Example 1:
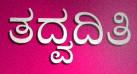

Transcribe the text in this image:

ತದ್ವದಿತಿ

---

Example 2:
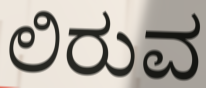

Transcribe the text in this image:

ಲಿರುವ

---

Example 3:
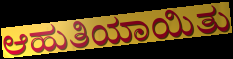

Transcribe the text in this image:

ಆಹುತಿಯಾಯಿತು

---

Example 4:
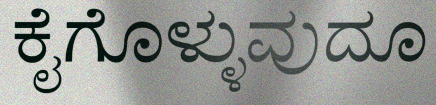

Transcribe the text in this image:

ಕೈಗೊಳ್ಳುವುದೂ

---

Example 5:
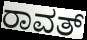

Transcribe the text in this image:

ರಾವತ್